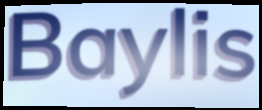
Baylis